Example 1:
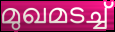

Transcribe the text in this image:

മുഖമടച്ച്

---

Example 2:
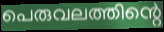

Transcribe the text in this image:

പെരുവലത്തിന്റെ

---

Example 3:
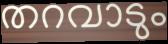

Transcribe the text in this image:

തറവാടും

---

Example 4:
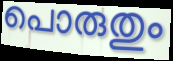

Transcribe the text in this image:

പൊരുതും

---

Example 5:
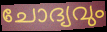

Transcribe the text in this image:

ചോദ്യവും